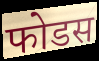
फोडस